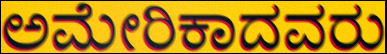
ಅಮೇರಿಕಾದವರು